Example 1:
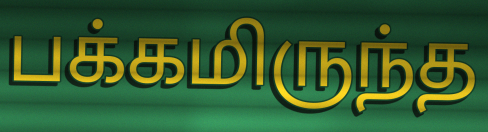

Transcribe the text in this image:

பக்கமிருந்த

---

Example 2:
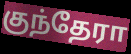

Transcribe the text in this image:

குந்தேரா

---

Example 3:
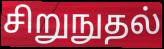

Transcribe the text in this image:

சிறுநுதல்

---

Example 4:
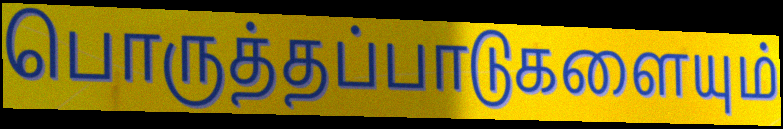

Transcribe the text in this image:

பொருத்தப்பாடுகளையும்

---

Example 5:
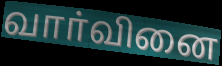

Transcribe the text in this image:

வார்வினை